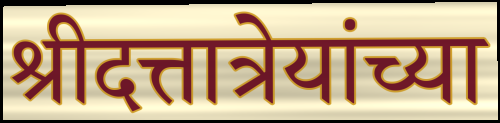
श्रीदत्तात्रेयांच्या